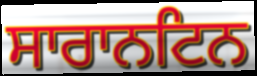
ਸਾਰਾਨਟਿਨ